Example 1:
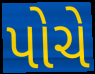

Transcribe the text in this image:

પોચે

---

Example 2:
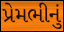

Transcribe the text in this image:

પ્રેમભીનું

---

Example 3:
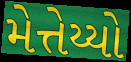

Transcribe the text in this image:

મેત્તેય્યો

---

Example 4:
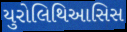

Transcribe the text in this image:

યુરોલિથિઆસિસ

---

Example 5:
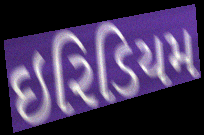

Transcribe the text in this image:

ઇરિડિયમ